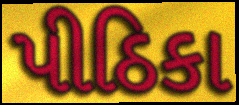
પીઠિકા